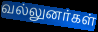
வல்லுனர்கள்